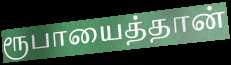
ரூபாயைத்தான்